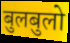
बुलबुलो